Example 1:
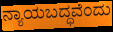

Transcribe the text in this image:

ನ್ಯಾಯಬದ್ಧವೆಂದು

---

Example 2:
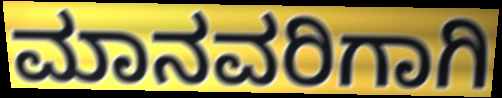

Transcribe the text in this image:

ಮಾನವರಿಗಾಗಿ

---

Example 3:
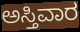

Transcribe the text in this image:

ಅಸ್ತಿವಾರ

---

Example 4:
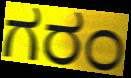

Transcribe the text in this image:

ಗರಂ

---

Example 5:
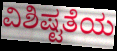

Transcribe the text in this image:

ವಿಶಿಷ್ಟತೆಯ